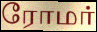
ரோமர்